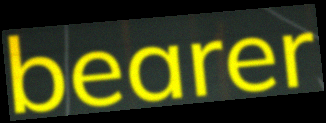
bearer